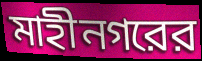
মাহীনগরের